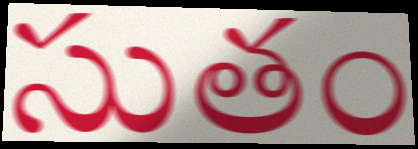
సుతం